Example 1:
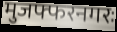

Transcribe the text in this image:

मुजफ्फरनगरः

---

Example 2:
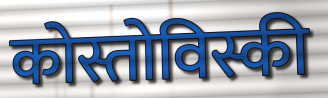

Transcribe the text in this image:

कोस्तोविस्की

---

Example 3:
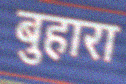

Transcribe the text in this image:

बुहारा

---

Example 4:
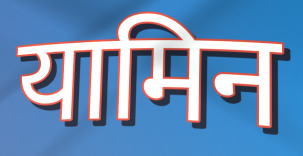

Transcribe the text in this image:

यामिन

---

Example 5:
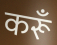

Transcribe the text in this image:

करूँ